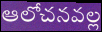
ఆలోచనవల్ల